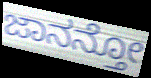
ಜಾನನ್ತೋ